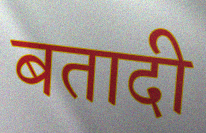
बतादी